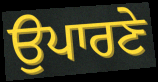
ਉਪਾਰਣੇ